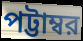
পট্টাম্বর